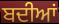
ਬਦੀਆਂ